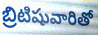
బ్రిటిషువారితో